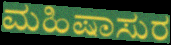
ಮಹಿಷಾಸುರ